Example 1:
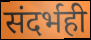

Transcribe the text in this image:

संदर्भही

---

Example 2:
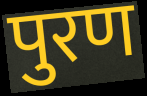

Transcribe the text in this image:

पुरण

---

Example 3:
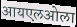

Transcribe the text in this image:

आयएलओला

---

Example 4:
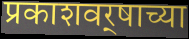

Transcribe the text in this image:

प्रकाशवर्षाच्या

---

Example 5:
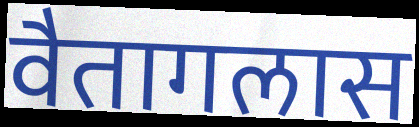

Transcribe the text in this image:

वैतागलास